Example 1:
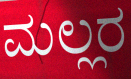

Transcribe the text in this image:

ಮಲ್ಲರ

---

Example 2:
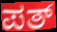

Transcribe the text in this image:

ಪತ್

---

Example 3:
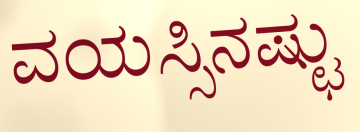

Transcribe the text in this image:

ವಯಸ್ಸಿನಷ್ಟು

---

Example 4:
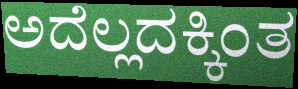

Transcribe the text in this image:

ಅದೆಲ್ಲದಕ್ಕಿಂತ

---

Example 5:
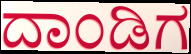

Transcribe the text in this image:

ದಾಂಡಿಗ